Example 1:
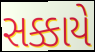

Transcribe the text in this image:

સક્કાયે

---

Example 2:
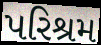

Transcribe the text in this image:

પરિશ્રમ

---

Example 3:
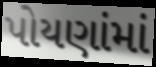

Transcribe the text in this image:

પોયણાંમાં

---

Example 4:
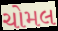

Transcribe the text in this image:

ચોમલ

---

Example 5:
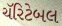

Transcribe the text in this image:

ચૅરિટેબલ